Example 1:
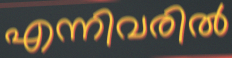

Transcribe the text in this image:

എന്നിവരിൽ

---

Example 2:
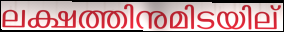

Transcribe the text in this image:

ലക്ഷത്തിനുമിടയില്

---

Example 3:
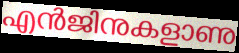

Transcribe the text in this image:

എൻജിനുകളാണു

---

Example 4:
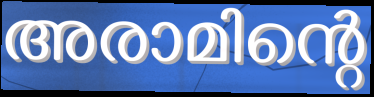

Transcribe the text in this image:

അരാമിന്റെ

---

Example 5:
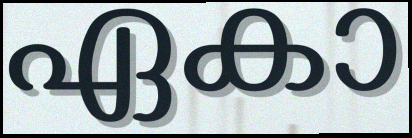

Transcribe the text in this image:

ഏകാ